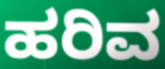
ಹರಿವ